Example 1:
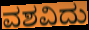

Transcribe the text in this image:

ವಶವಿದು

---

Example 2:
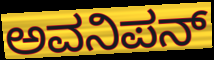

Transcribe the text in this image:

ಅವನಿಪನ್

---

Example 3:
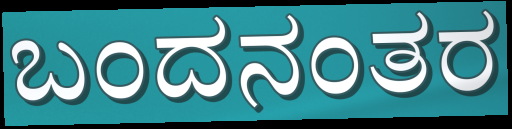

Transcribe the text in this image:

ಬಂದನಂತರ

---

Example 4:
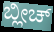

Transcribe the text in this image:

ಬ್ಲೀಚ್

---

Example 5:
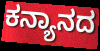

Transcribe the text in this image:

ಕನ್ಯಾನದ